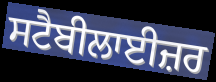
ਸਟੈਬੀਲਾਈਜ਼ਰ